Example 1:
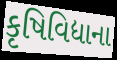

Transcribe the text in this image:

કૃષિવિદ્યાના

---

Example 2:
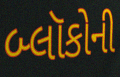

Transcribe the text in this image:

બ્લૉકોની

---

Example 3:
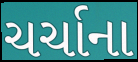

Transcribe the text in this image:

ચર્ચાના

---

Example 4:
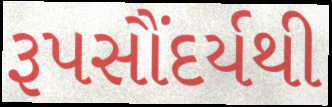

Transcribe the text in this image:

રૂપસૌંદર્યથી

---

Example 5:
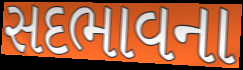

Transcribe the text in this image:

સદભાવના